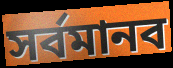
সর্বমানব